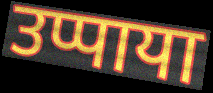
उप्पाया